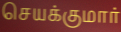
செயக்குமார்